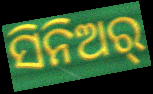
ସିନିଅର୍